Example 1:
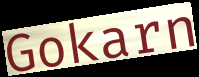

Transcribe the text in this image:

Gokarn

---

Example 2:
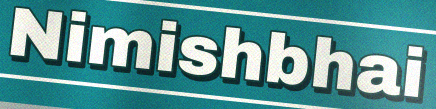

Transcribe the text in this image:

Nimishbhai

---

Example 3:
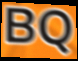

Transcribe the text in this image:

BQ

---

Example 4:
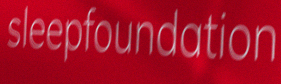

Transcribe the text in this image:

sleepfoundation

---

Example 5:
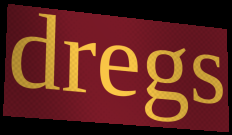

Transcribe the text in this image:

dregs